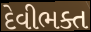
દેવીભક્ત